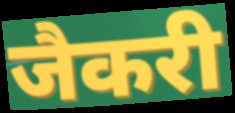
जैकरी